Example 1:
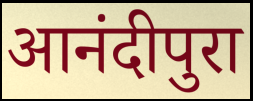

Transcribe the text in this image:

आनंदीपुरा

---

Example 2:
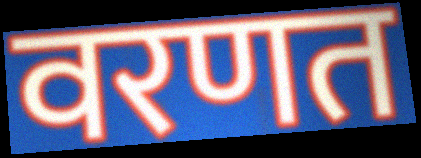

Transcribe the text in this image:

वरणत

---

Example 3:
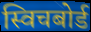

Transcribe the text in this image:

स्विचबोर्ड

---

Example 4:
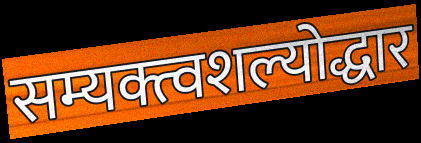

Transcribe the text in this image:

सम्यक्त्वशल्योद्धार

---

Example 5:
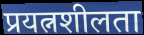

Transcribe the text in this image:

प्रयत्नशीलता